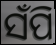
ସଁପି